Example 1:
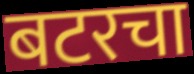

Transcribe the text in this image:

बटरचा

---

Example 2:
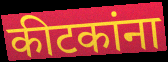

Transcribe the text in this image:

कीटकांना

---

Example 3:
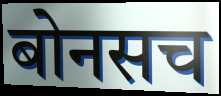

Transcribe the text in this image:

बोनसच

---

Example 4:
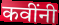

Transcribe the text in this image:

कवींनी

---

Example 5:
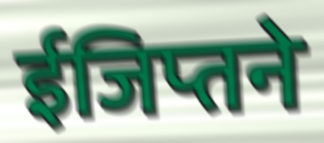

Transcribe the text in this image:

ईजिप्तने